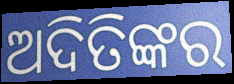
ଅଦିତିଙ୍କର